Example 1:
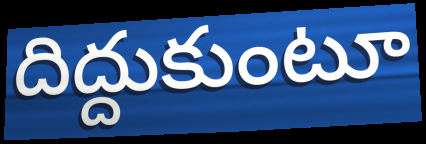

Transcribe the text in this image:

దిద్దుకుంటూ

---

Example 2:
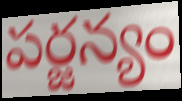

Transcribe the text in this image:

పర్జన్యం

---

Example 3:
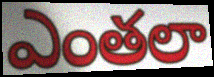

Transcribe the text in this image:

ఎంతలా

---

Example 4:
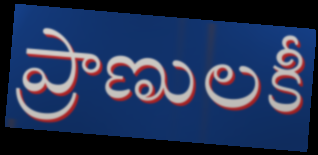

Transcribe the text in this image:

ప్రాణులకీ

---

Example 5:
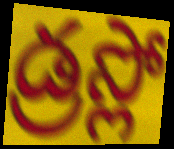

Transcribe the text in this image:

డ్రస్లో